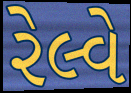
રેલ્વે